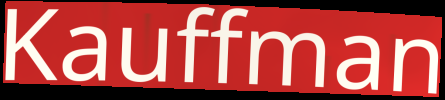
Kauffman